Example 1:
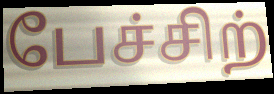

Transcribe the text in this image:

பேச்சிற்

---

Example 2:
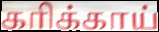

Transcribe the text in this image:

கரிக்காய்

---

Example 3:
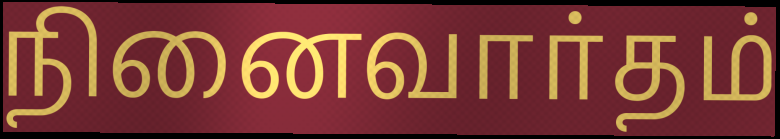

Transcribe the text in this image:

நினைவார்தம்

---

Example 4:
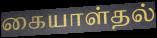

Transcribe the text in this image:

கையாள்தல்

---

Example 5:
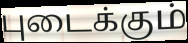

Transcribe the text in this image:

புடைக்கும்